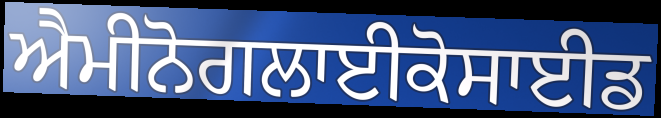
ਐਮੀਨੋਗਲਾਈਕੋਸਾਈਡ